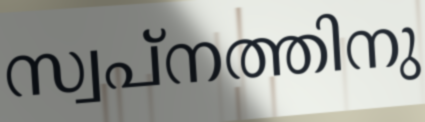
സ്വപ്നത്തിനു